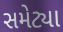
સમેટ્યા